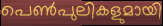
പെൺപുലികളുമായി